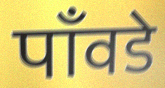
पाँवडे